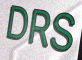
DRS